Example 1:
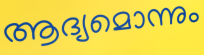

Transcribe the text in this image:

ആദ്യമൊന്നും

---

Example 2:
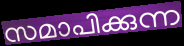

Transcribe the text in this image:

സമാപിക്കുന്ന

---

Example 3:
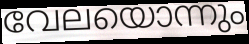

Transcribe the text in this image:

വേലയൊന്നും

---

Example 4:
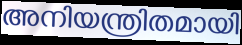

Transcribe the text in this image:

അനിയന്ത്രിതമായി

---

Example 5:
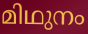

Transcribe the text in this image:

മിഥുനം